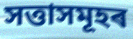
সত্তাসমূহৰ